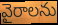
వైరాలను